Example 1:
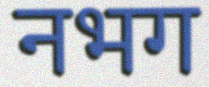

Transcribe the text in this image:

नभग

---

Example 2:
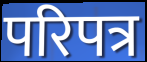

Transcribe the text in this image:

परिपत्र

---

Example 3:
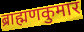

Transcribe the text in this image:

ब्राह्मणकुमार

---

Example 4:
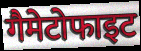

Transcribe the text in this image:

गैमेटोफाइट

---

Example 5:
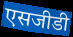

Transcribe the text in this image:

एसजीडी